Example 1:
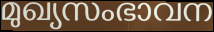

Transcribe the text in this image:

മുഖ്യസംഭാവന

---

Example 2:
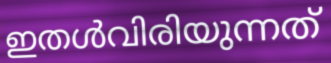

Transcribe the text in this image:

ഇതൾവിരിയുന്നത്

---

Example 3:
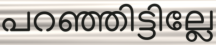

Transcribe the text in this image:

പറഞ്ഞിട്ടില്ലേ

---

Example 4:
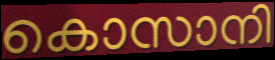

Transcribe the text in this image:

കൊസാനി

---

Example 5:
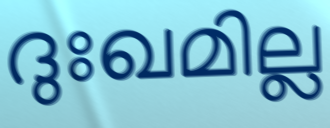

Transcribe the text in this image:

ദുഃഖമില്ല